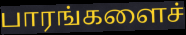
பாரங்களைச்